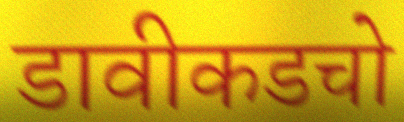
डावीकडचो